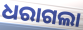
ଧରାଗଲା